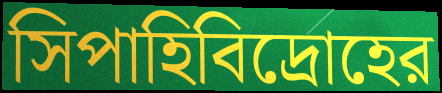
সিপাহিবিদ্রোহের